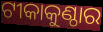
ଟୀକାକୁଣ୍ଠାର